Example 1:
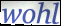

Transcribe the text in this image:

wohl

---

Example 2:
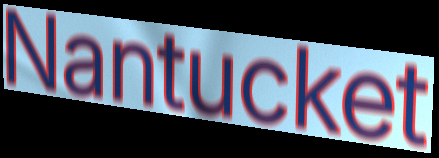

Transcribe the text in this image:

Nantucket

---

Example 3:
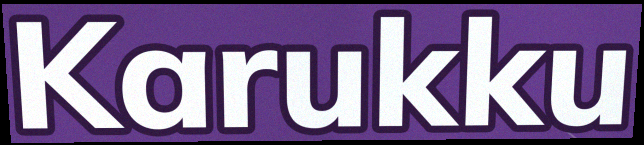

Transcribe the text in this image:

Karukku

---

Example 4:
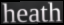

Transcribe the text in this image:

heath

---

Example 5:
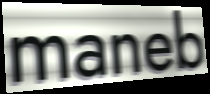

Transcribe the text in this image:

maneb